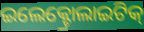
ଇଲେକ୍ଟ୍ରୋଲାଇଟିକ୍